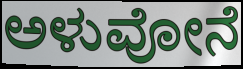
ಅಳುವೋನೆ